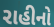
રાહીનો